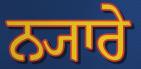
ਨ੍ਯਾਰੇ